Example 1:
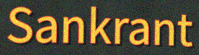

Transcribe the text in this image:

Sankrant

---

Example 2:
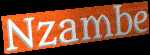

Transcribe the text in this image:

Nzambe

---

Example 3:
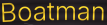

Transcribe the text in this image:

Boatman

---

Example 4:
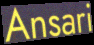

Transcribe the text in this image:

Ansari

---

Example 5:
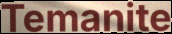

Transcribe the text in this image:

Temanite